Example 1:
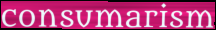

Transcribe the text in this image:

consumarism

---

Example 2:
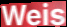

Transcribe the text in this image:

Weis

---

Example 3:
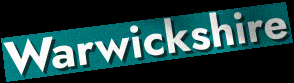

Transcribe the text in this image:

Warwickshire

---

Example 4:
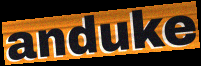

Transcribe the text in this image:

anduke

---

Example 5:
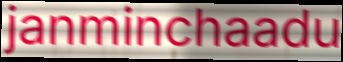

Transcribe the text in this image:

janminchaadu